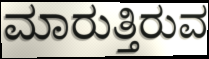
ಮಾರುತ್ತಿರುವ